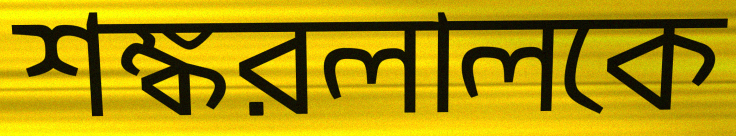
শঙ্করলালকে